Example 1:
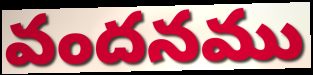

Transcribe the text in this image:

వందనము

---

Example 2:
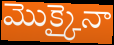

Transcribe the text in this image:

మొక్కైనా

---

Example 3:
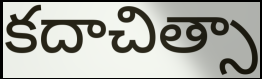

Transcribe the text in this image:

కదాచిత్సా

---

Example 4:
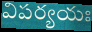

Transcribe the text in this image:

విపర్యయః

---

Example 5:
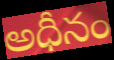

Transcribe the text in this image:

అధీనం